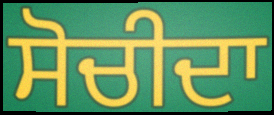
ਸੋਚੀਦਾ